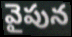
వైపున